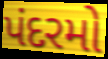
પંદરમો